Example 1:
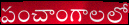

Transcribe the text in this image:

పంచాంగాలలో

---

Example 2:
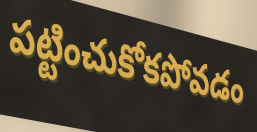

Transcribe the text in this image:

పట్టించుకోకపోవడం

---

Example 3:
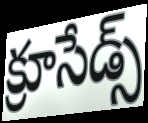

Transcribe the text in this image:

క్రూసేడ్స్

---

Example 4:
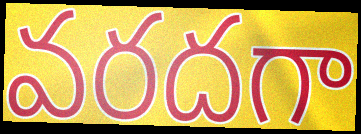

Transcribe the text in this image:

వరదగా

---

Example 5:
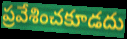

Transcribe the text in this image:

ప్రవేశించకూడదు